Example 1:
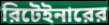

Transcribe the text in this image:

রিটেইনারের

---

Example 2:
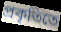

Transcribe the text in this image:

প্রকৃতিতে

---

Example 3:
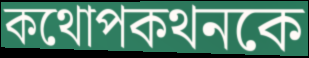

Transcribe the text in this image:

কথোপকথনকে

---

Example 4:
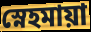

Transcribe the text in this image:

স্নেহমায়া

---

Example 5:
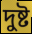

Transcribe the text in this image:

দুষ্ট